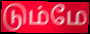
டும்மே